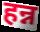
हन्न